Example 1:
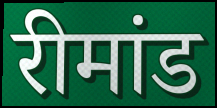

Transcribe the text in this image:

रीमांड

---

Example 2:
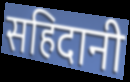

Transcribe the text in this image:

सहिदानी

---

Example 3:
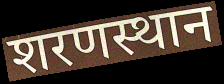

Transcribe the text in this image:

शरणस्थान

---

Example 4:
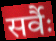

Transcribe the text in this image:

सर्वैः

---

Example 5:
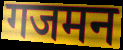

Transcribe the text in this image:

गजमन